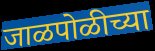
जाळपोळीच्या